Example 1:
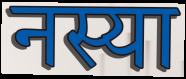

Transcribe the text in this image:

नस्या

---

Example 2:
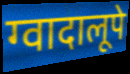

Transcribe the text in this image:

ग्वादालूपे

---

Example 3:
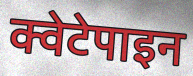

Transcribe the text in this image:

क्वेटेपाइन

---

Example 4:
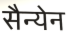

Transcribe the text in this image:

सैन्येन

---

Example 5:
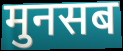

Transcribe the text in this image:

मुनसब